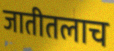
जातीतलाच